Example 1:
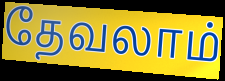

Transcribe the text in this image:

தேவலாம்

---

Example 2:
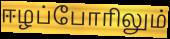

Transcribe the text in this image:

ஈழப்போரிலும்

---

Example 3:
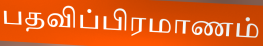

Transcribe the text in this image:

பதவிப்பிரமாணம்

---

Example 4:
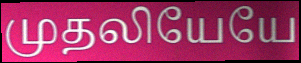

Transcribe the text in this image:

முதலியேயே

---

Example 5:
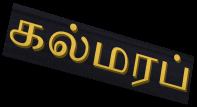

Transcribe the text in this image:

கல்மரப்